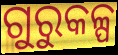
ଗୁରୁକଳ୍ପ